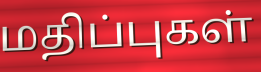
மதிப்புகள்